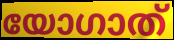
യോഗാത്